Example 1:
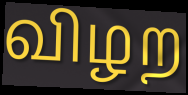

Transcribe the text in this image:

விழற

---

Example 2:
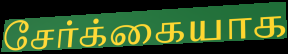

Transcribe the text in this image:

சேர்க்கையாக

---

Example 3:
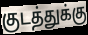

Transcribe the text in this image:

குடத்துக்கு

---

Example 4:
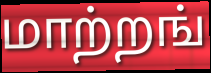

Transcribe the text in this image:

மாற்றங்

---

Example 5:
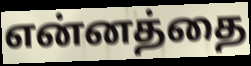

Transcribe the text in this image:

என்னத்தை